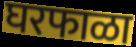
घरफाळा